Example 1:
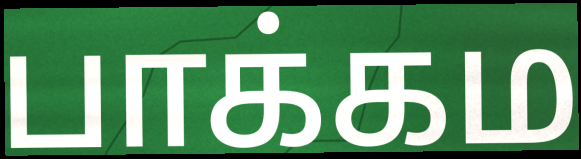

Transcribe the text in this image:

பாக்கம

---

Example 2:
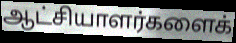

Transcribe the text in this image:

ஆட்சியாளர்களைக்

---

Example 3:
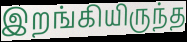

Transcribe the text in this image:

இறங்கியிருந்த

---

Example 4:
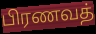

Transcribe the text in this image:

பிரணவத்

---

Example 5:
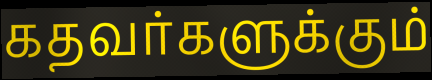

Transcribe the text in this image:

கதவர்களுக்கும்